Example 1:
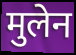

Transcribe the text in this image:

मुलेन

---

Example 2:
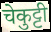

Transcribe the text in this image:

चेकुट्टी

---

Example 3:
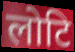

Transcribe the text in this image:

लोटि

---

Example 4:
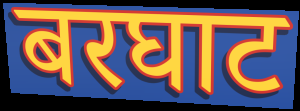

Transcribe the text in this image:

बरघाट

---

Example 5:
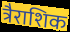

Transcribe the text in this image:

त्रैराशिक